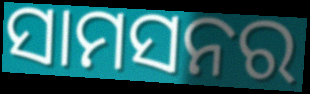
ସାମସନର